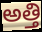
అత్తి